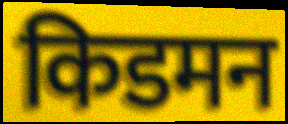
किडमन